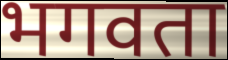
भगवता